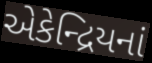
એકેન્દ્રિયનાં